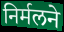
निर्मलने